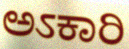
ಅಽಕಾರಿ